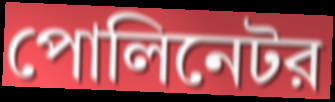
পোলিনেটর